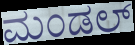
ಮಂಡಲ್